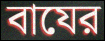
বাযের